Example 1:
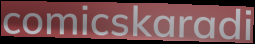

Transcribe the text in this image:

comicskaradi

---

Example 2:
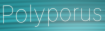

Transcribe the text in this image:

Polyporus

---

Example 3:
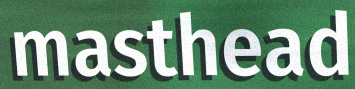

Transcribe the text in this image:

masthead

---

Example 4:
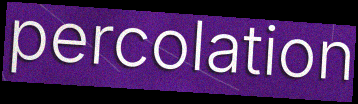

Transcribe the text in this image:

percolation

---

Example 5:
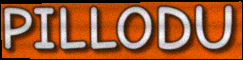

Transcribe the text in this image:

PILLODU